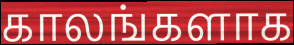
காலங்களாக